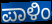
ಪಾಳಿಂ